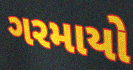
ગરમાયો